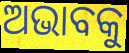
ଅଭାବକୁ